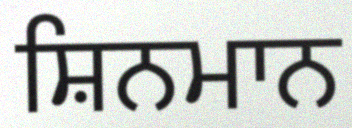
ਸ਼ਿਨਮਾਨ